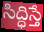
సిద్ధిస్తే